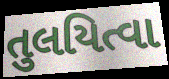
તુલયિત્વા